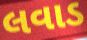
લવાડ